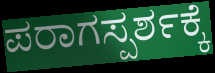
ಪರಾಗಸ್ಪರ್ಶಕ್ಕೆ